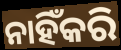
ନାହିଁକରି